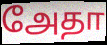
அேதா